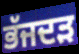
ਭੱਜਦੜ